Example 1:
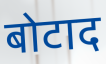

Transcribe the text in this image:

बोटाद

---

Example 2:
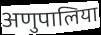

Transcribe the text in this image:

अणुपालिया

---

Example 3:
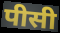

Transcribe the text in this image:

पीसी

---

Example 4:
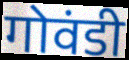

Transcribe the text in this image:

गोवंडी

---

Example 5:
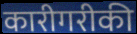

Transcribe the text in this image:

कारीगरीकी